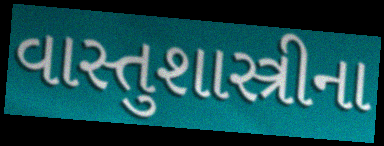
વાસ્તુશાસ્ત્રીના